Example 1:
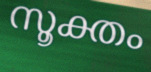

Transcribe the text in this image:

സൂക്തം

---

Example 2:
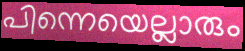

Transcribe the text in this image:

പിന്നെയെല്ലാരും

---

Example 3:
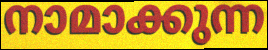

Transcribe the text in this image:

നാമാക്കുന്ന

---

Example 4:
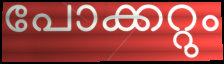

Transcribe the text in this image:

പോക്കറ്റും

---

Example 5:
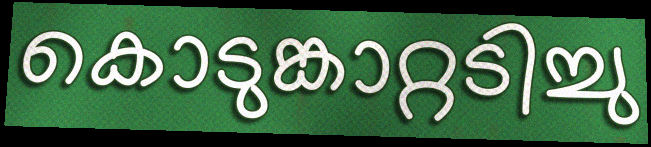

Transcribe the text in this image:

കൊടുങ്കാറ്റടിച്ചു